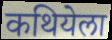
कथियेला